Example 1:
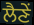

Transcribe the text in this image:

ਲੈਣੇਂ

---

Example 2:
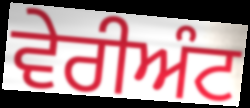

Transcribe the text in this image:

ਵੇਰੀਅੰਟ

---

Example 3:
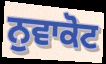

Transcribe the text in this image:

ਨੁਵਾਕੋਟ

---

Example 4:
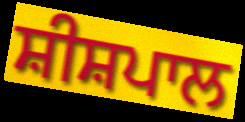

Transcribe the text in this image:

ਸ਼ੀਸ਼ਪਾਲ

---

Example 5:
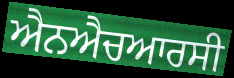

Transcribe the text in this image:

ਐਨਐਚਆਰਸੀ